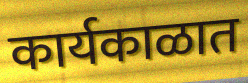
कार्यकाळात